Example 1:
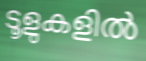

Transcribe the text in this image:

ടൂളുകളിൽ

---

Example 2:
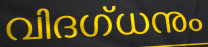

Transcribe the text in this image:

വിദഗ്ധനും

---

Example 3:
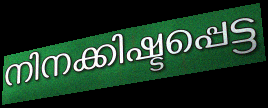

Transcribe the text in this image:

നിനക്കിഷ്ടപ്പെട്ട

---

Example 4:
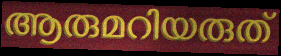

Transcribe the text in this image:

ആരുമറിയരുത്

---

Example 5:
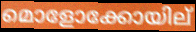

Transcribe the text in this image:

മൊളോക്കോയില്